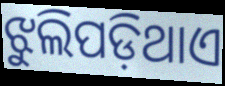
ଝୁଲିପଡ଼ିଥାଏ